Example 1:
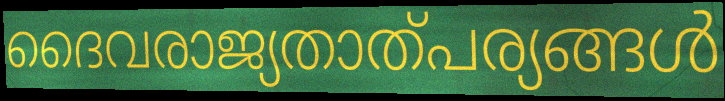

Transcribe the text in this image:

ദൈവരാജ്യതാത്പര്യങ്ങൾ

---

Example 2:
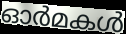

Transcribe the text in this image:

ഓർമകൾ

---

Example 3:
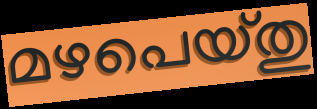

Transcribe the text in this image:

മഴപെയ്തു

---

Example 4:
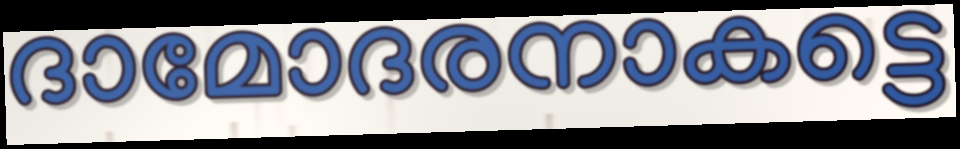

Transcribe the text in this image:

ദാമോദരനാകട്ടെ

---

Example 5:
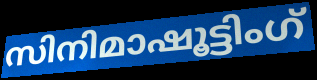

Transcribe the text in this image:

സിനിമാഷൂട്ടിംഗ്